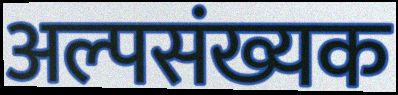
अल्पसंख्यक